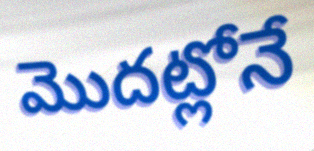
మొదట్లోనే